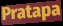
Pratapa